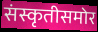
संस्कृतीसमोर